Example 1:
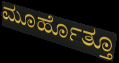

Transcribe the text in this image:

ಮೂರ್ಹೊತ್ತೂ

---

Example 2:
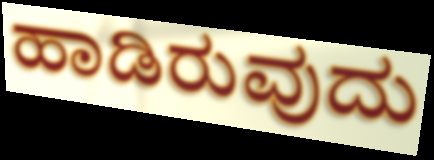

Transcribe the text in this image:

ಹಾಡಿರುವುದು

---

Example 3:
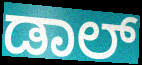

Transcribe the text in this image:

ಡಾಲ್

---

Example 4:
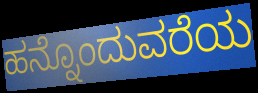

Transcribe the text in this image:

ಹನ್ನೊಂದುವರೆಯ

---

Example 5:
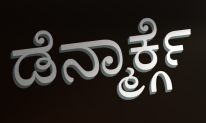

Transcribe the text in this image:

ಡೆನ್ಮಾರ್ಕ್ಗೆ